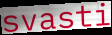
svasti